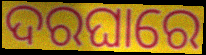
ଦରଘାରେ